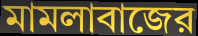
মামলাবাজের